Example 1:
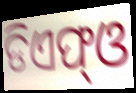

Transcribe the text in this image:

ଡିଏଫ୍ଓ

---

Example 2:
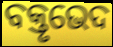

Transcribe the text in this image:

ବକ୍ତୃଭେଦ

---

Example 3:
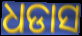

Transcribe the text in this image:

ଧଡାସ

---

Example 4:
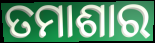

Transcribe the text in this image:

ତମାଶାର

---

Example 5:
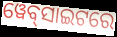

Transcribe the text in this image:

ୱେବ୍‍ସାଇଟରେ